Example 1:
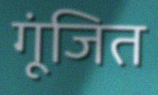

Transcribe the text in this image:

गूंजित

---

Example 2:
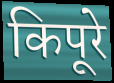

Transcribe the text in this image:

किपूरे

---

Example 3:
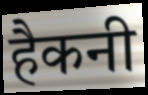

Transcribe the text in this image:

हैकनी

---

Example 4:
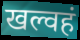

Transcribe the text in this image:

खल्वहं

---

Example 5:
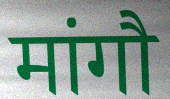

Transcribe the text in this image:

मांगौ